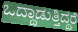
ಒದ್ದಾಡುತ್ತಿದ್ದರೆ